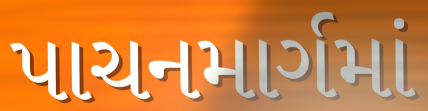
પાચનમાર્ગમાં